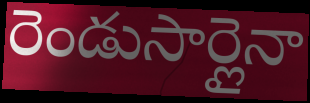
రెండుసార్లైనా